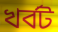
খর্বট